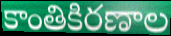
కాంతికిరణాల